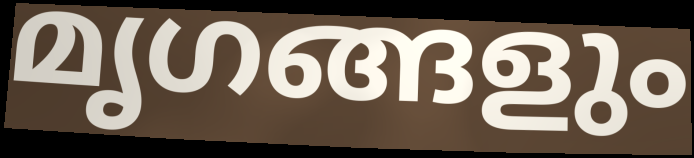
മൃഗങ്ങളും